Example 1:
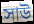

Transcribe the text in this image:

সাউ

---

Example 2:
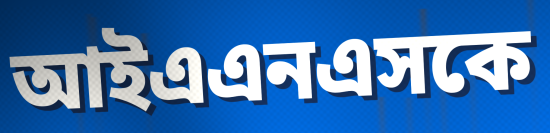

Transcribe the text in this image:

আইএএনএসকে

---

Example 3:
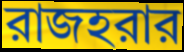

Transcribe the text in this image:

রাজহরার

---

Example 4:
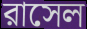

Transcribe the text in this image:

রাসেল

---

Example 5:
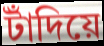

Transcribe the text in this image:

টাঁদিয়ে